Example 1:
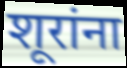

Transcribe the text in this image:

शूरांना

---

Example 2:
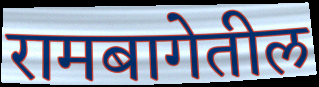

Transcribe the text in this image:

रामबागेतील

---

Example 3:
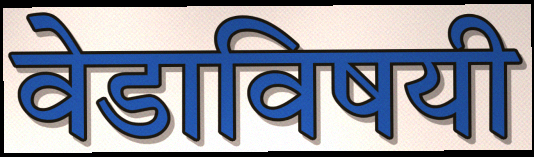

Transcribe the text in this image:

वेडाविषयी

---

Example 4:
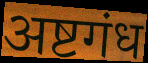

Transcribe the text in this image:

अष्टगंध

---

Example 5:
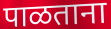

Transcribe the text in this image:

पाळताना